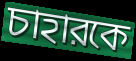
চাহারকে